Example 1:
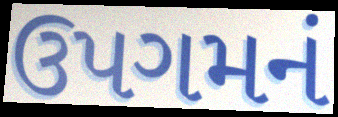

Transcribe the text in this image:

ઉપગમનં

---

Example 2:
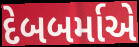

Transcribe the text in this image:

દેબબર્માએ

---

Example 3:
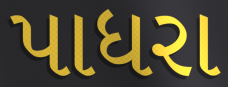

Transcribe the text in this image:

પાધરા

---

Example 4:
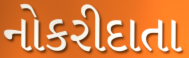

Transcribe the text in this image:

નોકરીદાતા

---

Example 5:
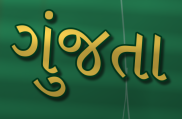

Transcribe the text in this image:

ગુંજતા